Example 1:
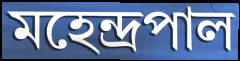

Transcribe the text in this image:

মহেন্দ্রপাল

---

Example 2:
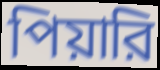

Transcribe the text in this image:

পিয়ারি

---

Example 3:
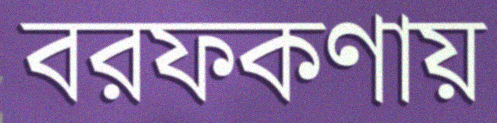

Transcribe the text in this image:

বরফকণায়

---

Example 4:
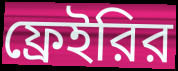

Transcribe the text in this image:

ফ্রেইরির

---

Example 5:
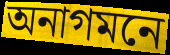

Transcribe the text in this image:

অনাগমনে